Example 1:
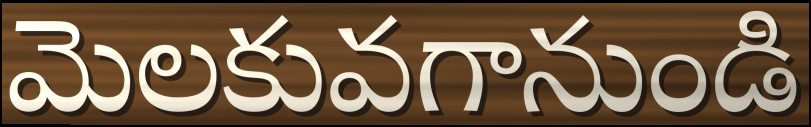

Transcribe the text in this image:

మెలకువగానుండి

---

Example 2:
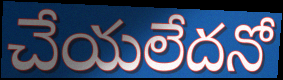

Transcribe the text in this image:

చేయలేదనో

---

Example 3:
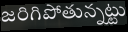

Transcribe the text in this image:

జరిగిపోతున్నట్టు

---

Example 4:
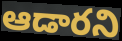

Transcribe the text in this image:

ఆడారని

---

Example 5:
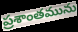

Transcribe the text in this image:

ప్రశాంతమును